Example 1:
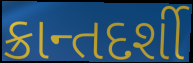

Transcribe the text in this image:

ક્રાન્તદર્શી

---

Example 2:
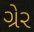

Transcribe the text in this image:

ગ્રેર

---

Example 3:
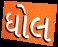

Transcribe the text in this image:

ધોલ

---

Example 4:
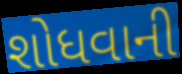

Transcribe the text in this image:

શોધવાની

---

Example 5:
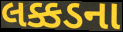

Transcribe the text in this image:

લક્કડના